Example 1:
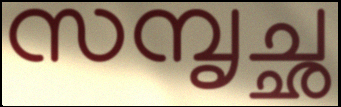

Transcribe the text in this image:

സമ്പൃച്ഛ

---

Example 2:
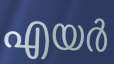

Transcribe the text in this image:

എയർ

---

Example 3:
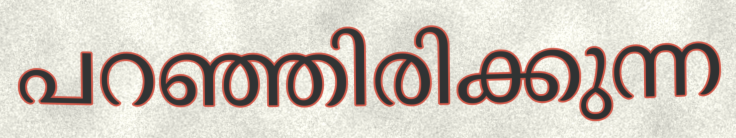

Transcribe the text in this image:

പറഞ്ഞിരിക്കുന്ന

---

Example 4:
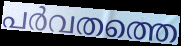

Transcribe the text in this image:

പർവതത്തെ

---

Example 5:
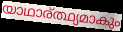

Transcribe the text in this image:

യാഥാര്ത്ഥ്യമാകും